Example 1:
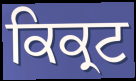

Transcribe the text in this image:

ਕਿਕ੍ਰਟ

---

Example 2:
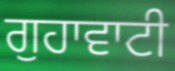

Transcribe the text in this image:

ਗੁਹਾਵਾਟੀ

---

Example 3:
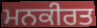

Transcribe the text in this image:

ਮਨਕੀਰਤ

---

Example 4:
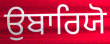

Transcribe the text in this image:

ਉਬਾਰਿਯੋ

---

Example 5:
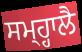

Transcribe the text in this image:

ਸਮ੍ਹ੍ਹਾਲੈ